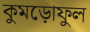
কুমড়োফুল